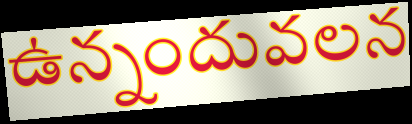
ఉన్నందువలన